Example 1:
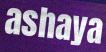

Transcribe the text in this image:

ashaya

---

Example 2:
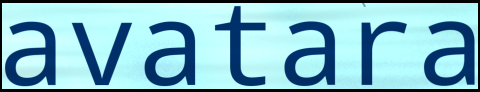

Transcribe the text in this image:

avatara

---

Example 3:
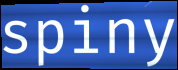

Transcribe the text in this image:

spiny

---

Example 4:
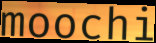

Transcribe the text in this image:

moochi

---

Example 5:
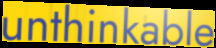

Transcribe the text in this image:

unthinkable